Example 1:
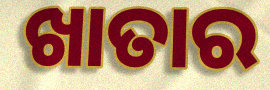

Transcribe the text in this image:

ଖାତାର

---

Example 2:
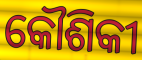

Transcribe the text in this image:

କୌଶିକୀ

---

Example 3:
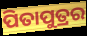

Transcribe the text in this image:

ପିତାପୁତ୍ରର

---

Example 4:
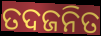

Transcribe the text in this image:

ତଦଜନିତ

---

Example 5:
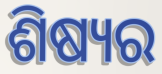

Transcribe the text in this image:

ଶିଷ୍ୟର